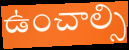
ఉంచాల్సి